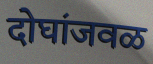
दोघांजवळ